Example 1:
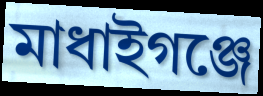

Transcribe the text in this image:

মাধাইগঞ্জে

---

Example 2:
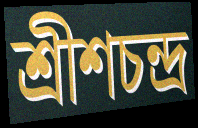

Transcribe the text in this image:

শ্রীশচন্দ্র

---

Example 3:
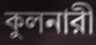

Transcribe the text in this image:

কুলনারী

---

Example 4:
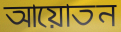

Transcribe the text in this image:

আয়োতন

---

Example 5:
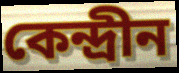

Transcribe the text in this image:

কেন্দ্রীন